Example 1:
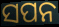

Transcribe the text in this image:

ସପନ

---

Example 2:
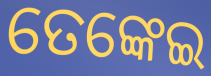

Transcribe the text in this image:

ତେଙ୍କେଇ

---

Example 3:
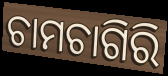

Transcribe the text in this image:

ଚାମଚାଗିରି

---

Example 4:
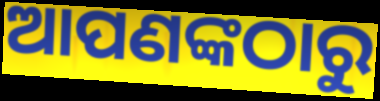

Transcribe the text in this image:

ଆପଣଙ୍କଠାରୁ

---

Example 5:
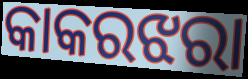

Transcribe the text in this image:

କାକରଝରା